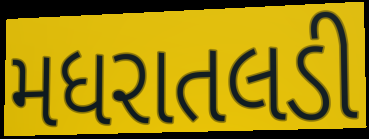
મધરાતલડી